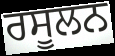
ਰਸੂਲਨ